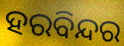
ହରବିନ୍ଦର